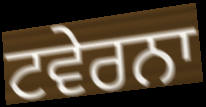
ਟਵੇਰਨਾ